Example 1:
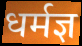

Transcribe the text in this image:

धर्मज्ञ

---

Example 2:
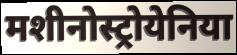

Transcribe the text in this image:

मशीनोस्ट्रोयेनिया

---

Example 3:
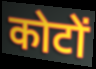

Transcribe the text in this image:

कोटों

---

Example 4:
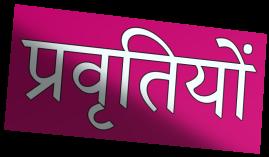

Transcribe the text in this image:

प्रवृतियों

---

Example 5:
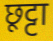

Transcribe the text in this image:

छूट्टा